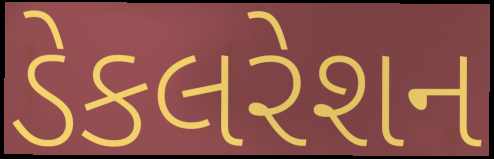
ડેકલરેશન